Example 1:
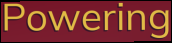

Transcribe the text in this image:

Powering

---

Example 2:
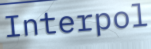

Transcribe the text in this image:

Interpol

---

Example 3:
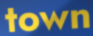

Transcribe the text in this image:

town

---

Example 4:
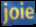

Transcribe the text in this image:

joie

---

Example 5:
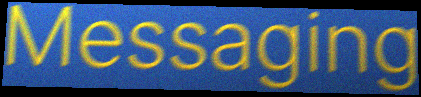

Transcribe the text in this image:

Messaging